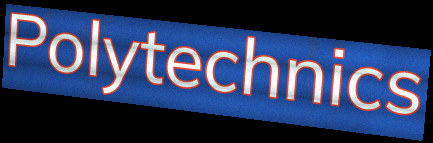
Polytechnics